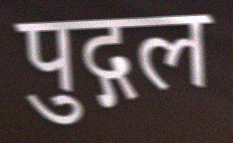
पुद्गल